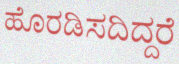
ಹೊರಡಿಸದಿದ್ದರೆ